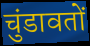
चुंडावतों